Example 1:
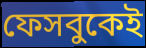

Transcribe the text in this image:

ফেসবুকেই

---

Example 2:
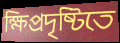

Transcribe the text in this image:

ক্ষিপ্রদৃষ্টিতে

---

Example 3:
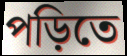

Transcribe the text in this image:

পড়িতে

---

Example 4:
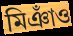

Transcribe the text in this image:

মিঞাঁও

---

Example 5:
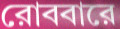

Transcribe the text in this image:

রোববারে